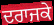
ਦਰਾਜਕੇ